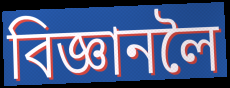
বিজ্ঞানলৈ